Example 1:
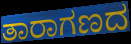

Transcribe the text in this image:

ತಾರಾಗಣದ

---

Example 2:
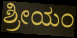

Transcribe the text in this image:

ಶ್ರೀಯಂ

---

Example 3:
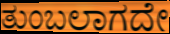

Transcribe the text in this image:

ತುಂಬಲಾಗದೇ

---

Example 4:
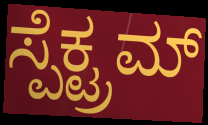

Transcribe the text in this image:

ಸ್ಪೆಕ್ಟ್ರಮ್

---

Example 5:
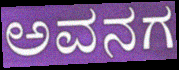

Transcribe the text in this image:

ಅವನಗ